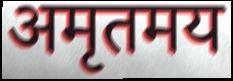
अमृतमय